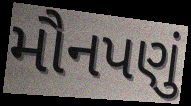
મૌનપણું